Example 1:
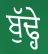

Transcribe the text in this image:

ਬੁੱਢ੍ਹੇ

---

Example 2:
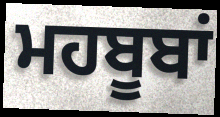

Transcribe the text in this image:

ਮਹਬੂਬਾਂ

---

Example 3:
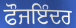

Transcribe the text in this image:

ਫੌਜਇੰਦਰ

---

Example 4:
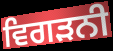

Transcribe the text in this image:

ਵਿਗੜਨੀ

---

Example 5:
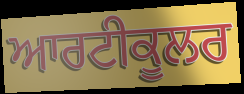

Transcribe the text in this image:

ਆਰਟੀਕੂਲਰ